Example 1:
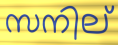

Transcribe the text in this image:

സനില്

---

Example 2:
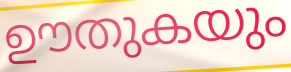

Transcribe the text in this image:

ഊതുകയും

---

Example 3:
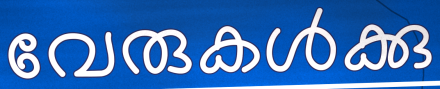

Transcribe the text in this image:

വേരുകൾക്കു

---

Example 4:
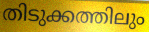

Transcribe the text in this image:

തിടുക്കത്തിലും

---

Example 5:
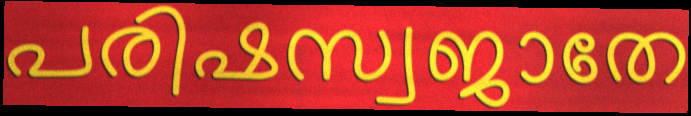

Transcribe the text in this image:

പരിഷസ്വജാതേ